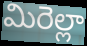
మిరెల్లా